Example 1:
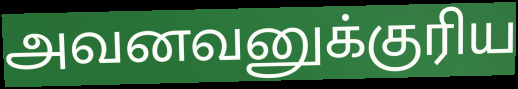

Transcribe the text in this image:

அவனவனுக்குரிய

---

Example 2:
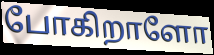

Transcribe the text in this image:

போகிறாளோ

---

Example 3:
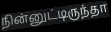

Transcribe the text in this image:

நின்னுட்டிருந்தா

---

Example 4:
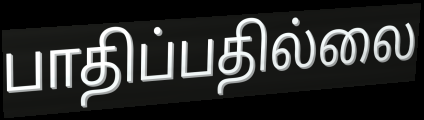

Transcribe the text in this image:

பாதிப்பதில்லை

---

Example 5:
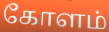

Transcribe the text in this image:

கோளம்